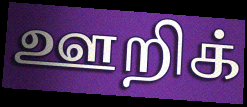
ஊறிக்